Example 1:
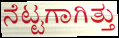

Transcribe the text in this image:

ನೆಟ್ಟಗಾಗಿತ್ತು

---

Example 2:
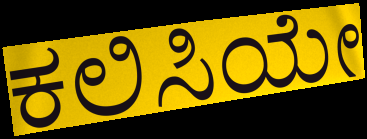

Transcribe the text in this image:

ಕಲಿಸಿಯೇ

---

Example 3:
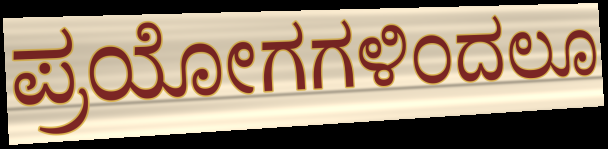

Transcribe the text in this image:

ಪ್ರಯೋಗಗಳಿಂದಲೂ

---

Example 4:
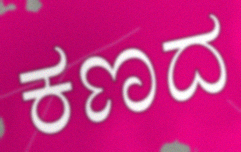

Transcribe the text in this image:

ಕಣದ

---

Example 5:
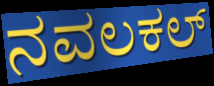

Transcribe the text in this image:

ನವಲಕಲ್